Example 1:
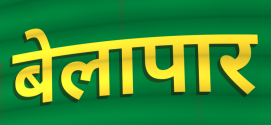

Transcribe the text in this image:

बेलापार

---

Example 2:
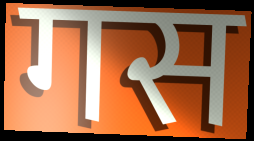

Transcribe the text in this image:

गस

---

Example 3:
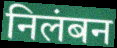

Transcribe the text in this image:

निलंबन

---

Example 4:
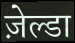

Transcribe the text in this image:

ज़ेल्डा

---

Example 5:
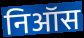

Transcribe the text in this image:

निऑस